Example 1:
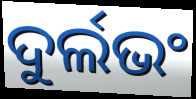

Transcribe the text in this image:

ଦୁର୍ଲଭଂ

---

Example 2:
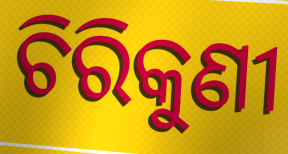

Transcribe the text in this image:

ଚିରିକୁଣୀ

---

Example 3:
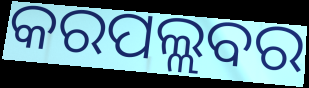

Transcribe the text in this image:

କରପଲ୍ଲବର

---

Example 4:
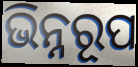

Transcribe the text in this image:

ଭିନ୍ନରୂପ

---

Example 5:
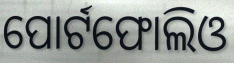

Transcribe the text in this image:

ପୋର୍ଟଫୋଲିଓ